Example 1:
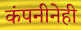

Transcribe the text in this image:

कंपनीनेही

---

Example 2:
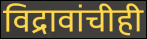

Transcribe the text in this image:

विद्रावांचीही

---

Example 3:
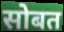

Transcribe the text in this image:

सोबत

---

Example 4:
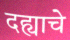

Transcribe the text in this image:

दह्याचे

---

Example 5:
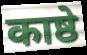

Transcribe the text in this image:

काष्ठे